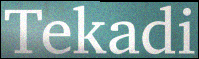
Tekadi